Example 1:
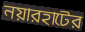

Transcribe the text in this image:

নয়ারহাটের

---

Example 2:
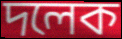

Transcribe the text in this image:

দলেক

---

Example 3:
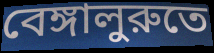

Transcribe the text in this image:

বেঙ্গালুরুতে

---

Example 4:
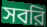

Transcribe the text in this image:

সবরি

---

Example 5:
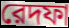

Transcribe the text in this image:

রেদফা